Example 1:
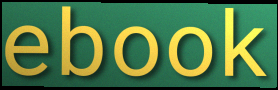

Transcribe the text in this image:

ebook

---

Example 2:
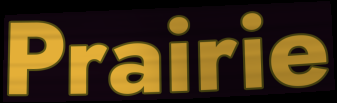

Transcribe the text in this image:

Prairie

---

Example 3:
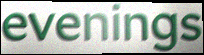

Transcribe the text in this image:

evenings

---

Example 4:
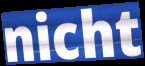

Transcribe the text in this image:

nicht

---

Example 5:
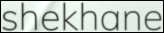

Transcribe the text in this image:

shekhane